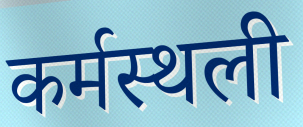
कर्मस्थली